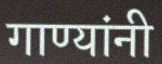
गाण्यांनी